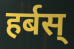
हर्बस्